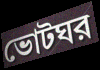
ভোটঘর